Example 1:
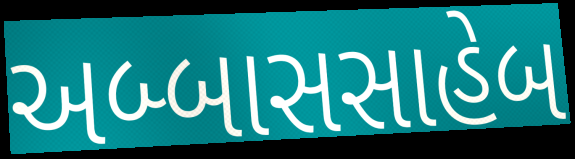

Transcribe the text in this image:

અબ્બાસસાહેબ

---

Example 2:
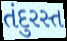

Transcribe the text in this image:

તંદુરસ્ત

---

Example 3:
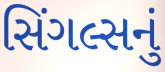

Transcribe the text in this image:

સિંગલ્સનું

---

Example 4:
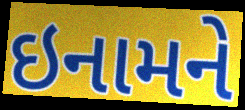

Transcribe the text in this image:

ઇનામને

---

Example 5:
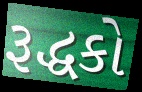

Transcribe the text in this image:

રૂદ્ધકો